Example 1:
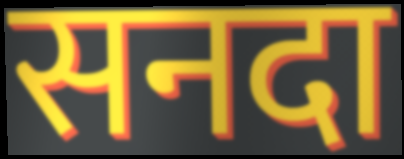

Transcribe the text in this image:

सनदा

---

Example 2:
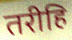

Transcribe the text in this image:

तरीहि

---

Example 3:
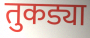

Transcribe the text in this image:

तुकड्या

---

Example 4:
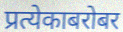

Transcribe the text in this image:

प्रत्येकाबरोबर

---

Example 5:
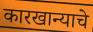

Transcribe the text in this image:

कारखान्याचे